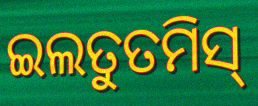
ଇଲତୁତମିସ୍